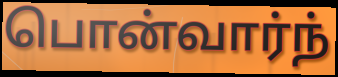
பொன்வார்ந்